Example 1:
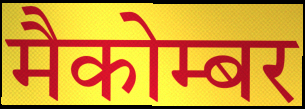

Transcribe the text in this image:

मैकोम्बर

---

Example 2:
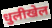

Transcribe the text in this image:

धुलीखेल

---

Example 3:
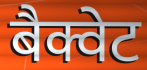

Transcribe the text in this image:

बैक्वेट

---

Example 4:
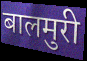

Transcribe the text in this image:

बालमुरी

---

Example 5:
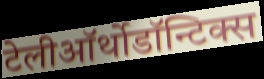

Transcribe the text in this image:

टेलीऑर्थोडॉन्टिक्स